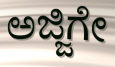
ಅಜ್ಜಿಗೇ